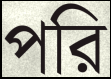
পরি